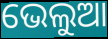
ଭେଲୁଆ